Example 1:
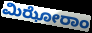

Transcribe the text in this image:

ಮಿಝೋರಾಂ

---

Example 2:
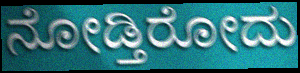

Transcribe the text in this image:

ನೋಡ್ತಿರೋದು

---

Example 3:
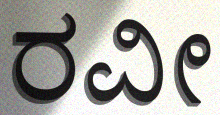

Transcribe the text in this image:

ರವೀ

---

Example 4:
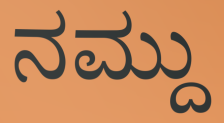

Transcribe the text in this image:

ನಮ್ದು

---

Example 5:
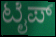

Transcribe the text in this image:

ಟೈಪ್